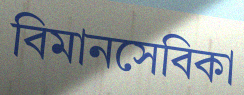
বিমানসেবিকা